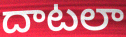
దాటలా